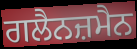
ਗਲੈਨਜ਼ਮੈਨ